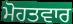
ਮੋਹਤਵਾਰ